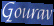
Gourav